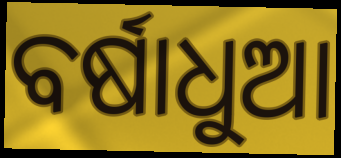
ବର୍ଷାଧୁଆ